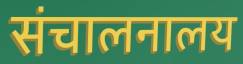
संचालनालय